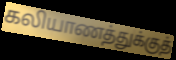
கலியாணத்துக்குத்